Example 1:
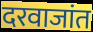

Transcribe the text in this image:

दरवाजांत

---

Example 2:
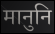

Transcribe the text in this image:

मानुनि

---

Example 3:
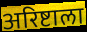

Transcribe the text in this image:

अरिष्टाला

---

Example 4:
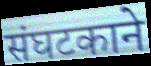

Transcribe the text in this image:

संघटकाने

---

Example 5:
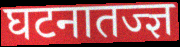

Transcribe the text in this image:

घटनातज्ज्ञ